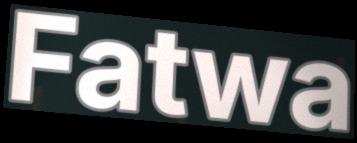
Fatwa